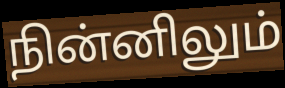
நின்னிலும்